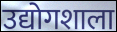
उद्योगशाला